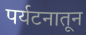
पर्यटनातून